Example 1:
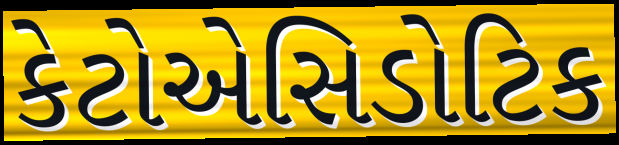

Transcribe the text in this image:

કેટોએસિડોટિક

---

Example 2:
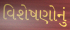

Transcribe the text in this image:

વિશેષણોનું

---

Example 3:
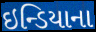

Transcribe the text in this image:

ઇન્ડિયાના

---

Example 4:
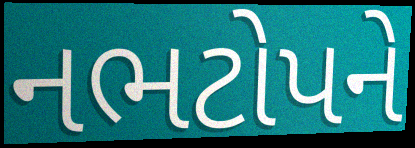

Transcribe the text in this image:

નભટોપને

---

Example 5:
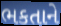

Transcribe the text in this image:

ભકતાને